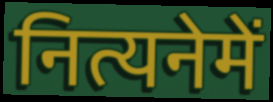
नित्यनेमें